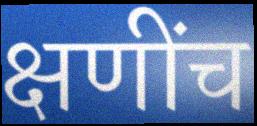
क्षणींच